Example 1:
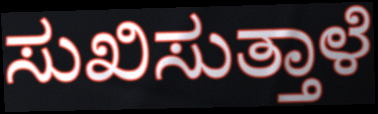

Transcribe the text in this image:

ಸುಖಿಸುತ್ತಾಳೆ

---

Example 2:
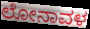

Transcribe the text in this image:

ಲೋನಾವಳ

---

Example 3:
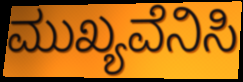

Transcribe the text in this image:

ಮುಖ್ಯವೆನಿಸಿ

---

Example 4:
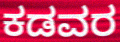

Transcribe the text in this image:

ಕಡವರ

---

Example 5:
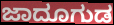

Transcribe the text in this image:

ಜಾದೂಗುಡ